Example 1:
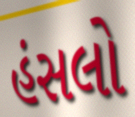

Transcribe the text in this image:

હંસલો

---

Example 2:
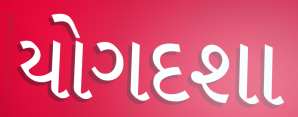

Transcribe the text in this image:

યોગદશા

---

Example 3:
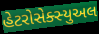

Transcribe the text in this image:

હેટરોસેક્સ્યુઅલ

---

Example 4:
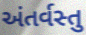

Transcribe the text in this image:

અંતર્વસ્તુ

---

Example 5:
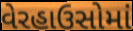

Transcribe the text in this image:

વેરહાઉસોમાં